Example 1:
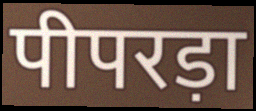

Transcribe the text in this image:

पीपरड़ा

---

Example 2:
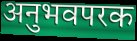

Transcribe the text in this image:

अनुभवपरक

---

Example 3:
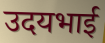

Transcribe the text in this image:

उदयभाई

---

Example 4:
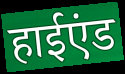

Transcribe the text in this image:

हाईएंड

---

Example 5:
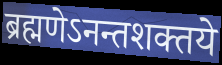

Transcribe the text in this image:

ब्रह्मणेऽनन्तशक्तये